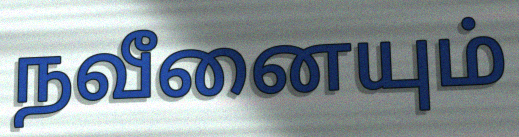
நவீனையும்